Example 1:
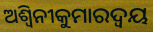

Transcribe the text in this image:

ଅଶ୍ୱିନୀକୁମାରଦ୍ୱୟ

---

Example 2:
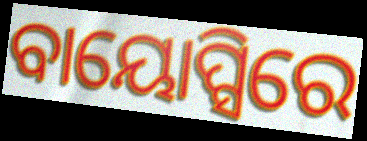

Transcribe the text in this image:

ବାୟୋପ୍ସିରେ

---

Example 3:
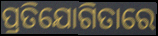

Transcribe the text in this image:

ପ୍ରତିଯୋଗିତାରେ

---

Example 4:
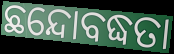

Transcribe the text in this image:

ଛନ୍ଦୋବଦ୍ଧତା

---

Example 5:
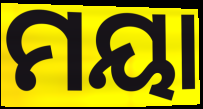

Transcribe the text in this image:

ମୟା